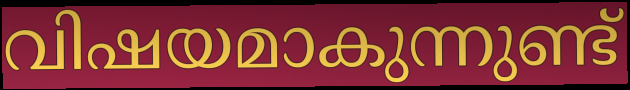
വിഷയമാകുന്നുണ്ട്